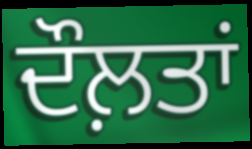
ਦੌਲ਼ਤਾਂ